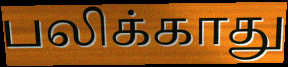
பலிக்காது